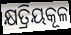
କ୍ଷତ୍ରିୟକୂଳ